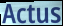
Actus